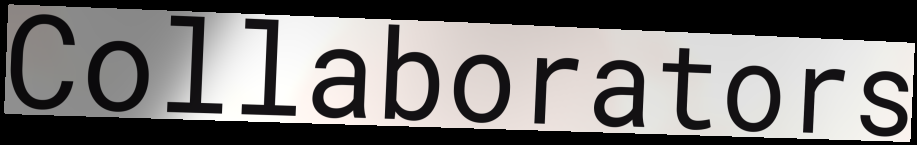
Collaborators